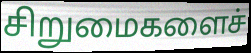
சிறுமைகளைச்